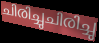
ചിരിച്ചുചിരിച്ചു